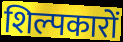
शिल्पकारों